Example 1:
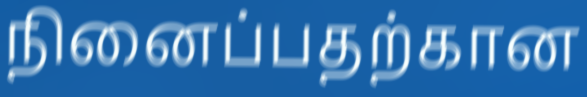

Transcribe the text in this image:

நினைப்பதற்கான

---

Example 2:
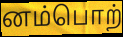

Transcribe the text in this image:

னம்பொற்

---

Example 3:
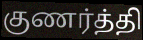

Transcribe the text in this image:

குணர்த்தி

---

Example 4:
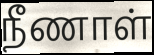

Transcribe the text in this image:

நீணாள்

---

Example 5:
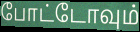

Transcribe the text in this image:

போட்டோவும்